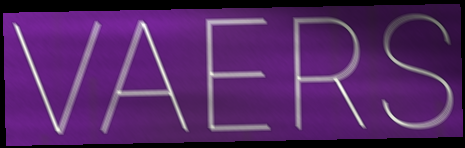
VAERS